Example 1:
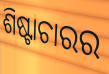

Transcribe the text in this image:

ଶିଷ୍ଟାଚାରର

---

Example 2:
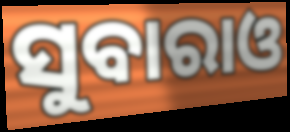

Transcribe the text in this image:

ସୁବାରାଓ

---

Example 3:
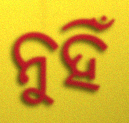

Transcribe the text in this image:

ନୁହିଁ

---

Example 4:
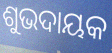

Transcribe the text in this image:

ଶୁଭଦାୟକ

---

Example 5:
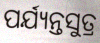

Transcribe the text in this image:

ପର୍ଯ୍ୟନ୍ତସୁତ୍ର